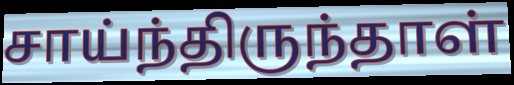
சாய்ந்திருந்தாள்